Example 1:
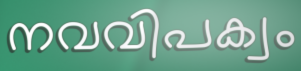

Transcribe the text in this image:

നവവിപക്വം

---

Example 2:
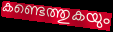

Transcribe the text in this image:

കണ്ടെത്തുകയും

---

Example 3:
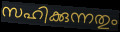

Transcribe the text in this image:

സഹിക്കുന്നതും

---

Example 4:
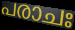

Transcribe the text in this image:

പരാചഃ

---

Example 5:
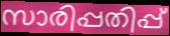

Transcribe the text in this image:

സാരിപ്പതിപ്പ്